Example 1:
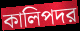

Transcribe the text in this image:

কালিপদর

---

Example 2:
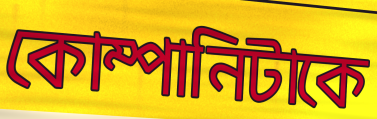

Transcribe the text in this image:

কোম্পানিটাকে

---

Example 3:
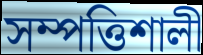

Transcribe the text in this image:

সম্পত্তিশালী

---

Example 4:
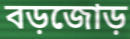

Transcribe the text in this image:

বড়জোড়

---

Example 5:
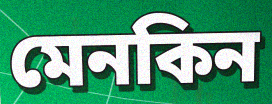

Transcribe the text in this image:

মেনকিন